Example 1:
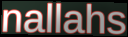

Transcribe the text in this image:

nallahs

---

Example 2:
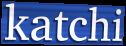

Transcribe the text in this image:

katchi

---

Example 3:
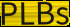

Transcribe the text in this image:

PLBs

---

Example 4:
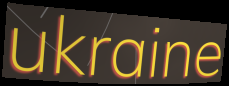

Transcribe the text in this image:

ukraine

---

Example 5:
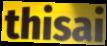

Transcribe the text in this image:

thisai